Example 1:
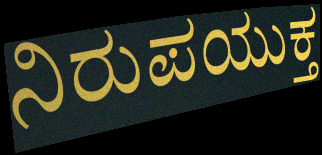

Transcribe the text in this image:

ನಿರುಪಯುಕ್ತ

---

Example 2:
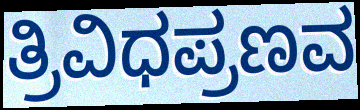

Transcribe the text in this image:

ತ್ರಿವಿಧಪ್ರಣವ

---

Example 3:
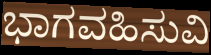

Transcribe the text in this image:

ಭಾಗವಹಿಸುವಿ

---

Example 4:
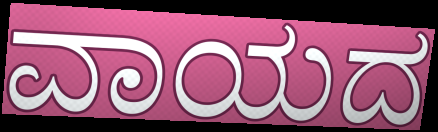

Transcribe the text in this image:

ವಾಯದ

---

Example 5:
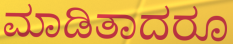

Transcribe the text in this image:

ಮಾಡಿತಾದರೂ